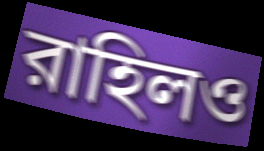
রাহিলও